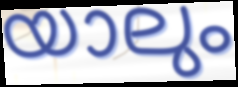
യാലും